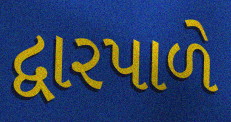
દ્વારપાળે